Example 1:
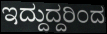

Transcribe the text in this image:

ಇದ್ದುದ್ದರಿಂದ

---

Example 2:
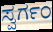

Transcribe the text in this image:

ಸ್ವರ್ಗಂ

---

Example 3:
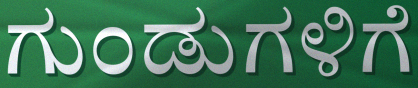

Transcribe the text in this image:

ಗುಂಡುಗಳಿಗೆ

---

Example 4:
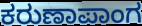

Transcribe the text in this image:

ಕರುಣಾಪಾಂಗ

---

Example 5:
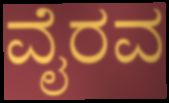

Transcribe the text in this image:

ವೈರವ